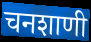
चनशाणी